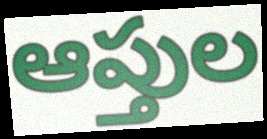
ఆప్తుల